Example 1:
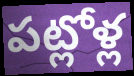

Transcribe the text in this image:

పట్లోళ్ల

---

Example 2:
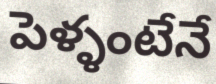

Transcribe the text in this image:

పెళ్ళంటేనే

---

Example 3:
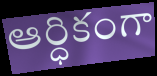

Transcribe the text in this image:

ఆర్ధికంగా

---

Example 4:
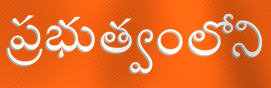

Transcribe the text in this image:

ప్రభుత్వంలోని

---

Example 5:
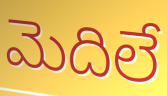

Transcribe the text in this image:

మెదిలే